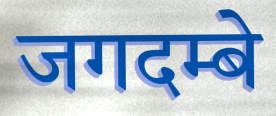
जगदम्बे